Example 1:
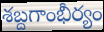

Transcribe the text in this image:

శబ్దగాంభీర్యం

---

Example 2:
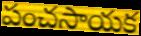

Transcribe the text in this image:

పంచసాయక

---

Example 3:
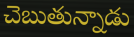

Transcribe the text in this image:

చెబుతున్నాడు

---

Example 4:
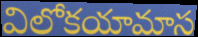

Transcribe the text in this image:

విలోకయామాస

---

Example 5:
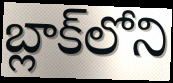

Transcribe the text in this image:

బ్లాక్‌లోని